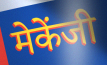
मेकेंजी